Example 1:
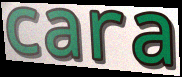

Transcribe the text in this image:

cara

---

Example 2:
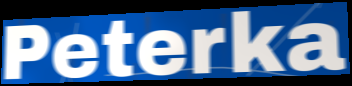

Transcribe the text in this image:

Peterka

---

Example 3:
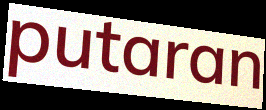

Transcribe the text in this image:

putaran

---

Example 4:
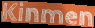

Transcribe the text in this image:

Kinmen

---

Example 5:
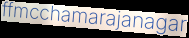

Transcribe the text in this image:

ffmcchamarajanagar